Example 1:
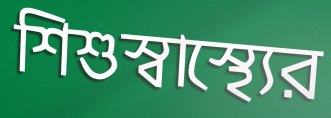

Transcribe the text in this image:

শিশুস্বাস্থ্যের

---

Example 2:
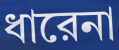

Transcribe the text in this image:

ধারেনা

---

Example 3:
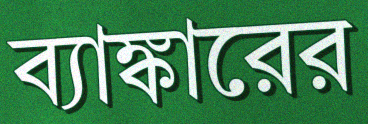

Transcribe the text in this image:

ব্যাঙ্কারের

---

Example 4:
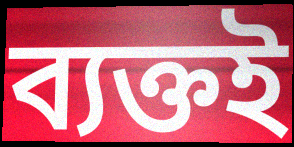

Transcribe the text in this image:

ব্যক্তই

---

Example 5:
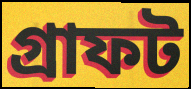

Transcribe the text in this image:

গ্রাফট